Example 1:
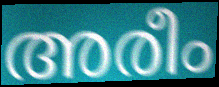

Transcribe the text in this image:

അരീം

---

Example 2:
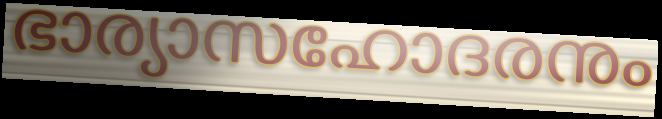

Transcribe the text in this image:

ഭാര്യാസഹോദരനും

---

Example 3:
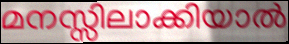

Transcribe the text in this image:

മനസ്സിലാക്കിയാൽ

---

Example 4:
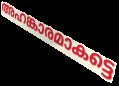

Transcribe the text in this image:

അഹങ്കാരമാകട്ടെ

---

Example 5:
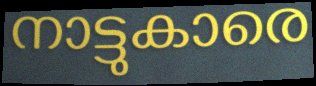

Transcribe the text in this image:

നാട്ടുകാരെ